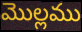
మొల్లము